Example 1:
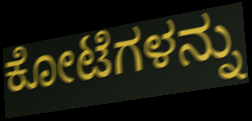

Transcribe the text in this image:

ಕೋಟೆಗಳನ್ನು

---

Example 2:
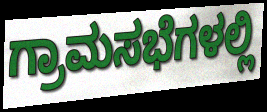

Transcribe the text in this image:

ಗ್ರಾಮಸಭೆಗಳಲ್ಲಿ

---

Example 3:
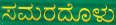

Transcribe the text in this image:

ಸಮರದೊಳು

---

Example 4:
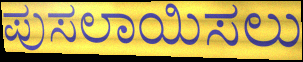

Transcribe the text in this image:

ಪುಸಲಾಯಿಸಲು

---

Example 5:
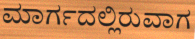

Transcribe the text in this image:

ಮಾರ್ಗದಲ್ಲಿರುವಾಗ